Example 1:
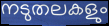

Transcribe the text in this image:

നടുതലകളും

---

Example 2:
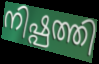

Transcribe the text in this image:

നിഷ്പത്തി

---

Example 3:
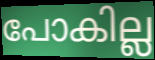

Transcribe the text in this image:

പോകില്ല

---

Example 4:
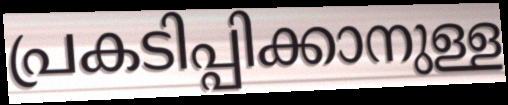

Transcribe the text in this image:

പ്രകടിപ്പിക്കാനുള്ള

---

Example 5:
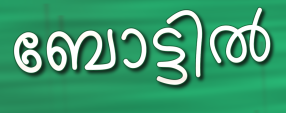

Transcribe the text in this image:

ബോട്ടിൽ